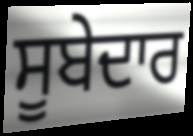
ਸੂਬੇਦਾਰ